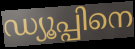
ഡ്യൂപ്പിനെ